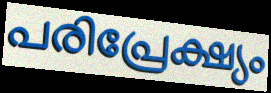
പരിപ്രേക്ഷ്യം